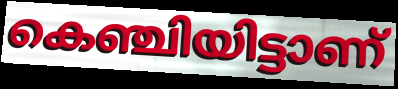
കെഞ്ചിയിട്ടാണ്